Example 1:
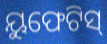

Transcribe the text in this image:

ୟୁଫେଟିସ୍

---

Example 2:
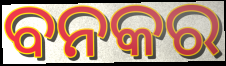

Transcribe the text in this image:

ବନକର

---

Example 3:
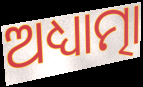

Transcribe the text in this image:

ଅଧ୍ୟାତ୍ମା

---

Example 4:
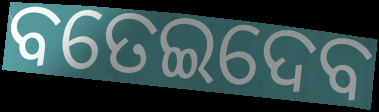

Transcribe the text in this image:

ବତେଇଦେବ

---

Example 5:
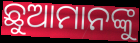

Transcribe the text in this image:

ଛୁଆମାନଙ୍କୁ